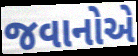
જવાનોએ